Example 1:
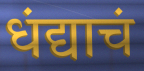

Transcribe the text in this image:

धंद्याचं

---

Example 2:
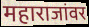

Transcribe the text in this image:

महाराजांवर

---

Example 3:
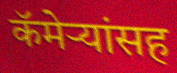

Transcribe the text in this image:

कॅमेऱ्यांसह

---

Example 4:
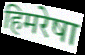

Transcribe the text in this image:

हिमरेषा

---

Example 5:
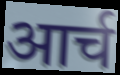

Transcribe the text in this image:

आर्च